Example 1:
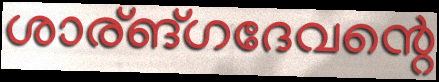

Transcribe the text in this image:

ശാര്ങ്ഗദേവന്റെ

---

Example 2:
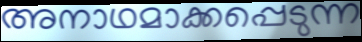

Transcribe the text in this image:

അനാഥമാക്കപ്പെടുന്ന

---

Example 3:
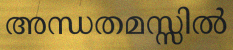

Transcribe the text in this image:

അന്ധതമസ്സിൽ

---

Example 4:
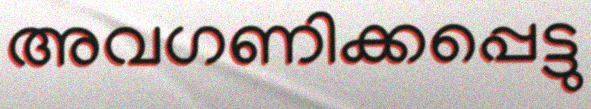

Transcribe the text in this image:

അവഗണിക്കപ്പെട്ടു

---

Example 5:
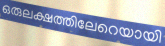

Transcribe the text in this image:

ഒരുലക്ഷത്തിലേറെയായി